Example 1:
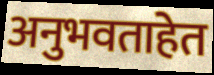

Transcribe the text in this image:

अनुभवताहेत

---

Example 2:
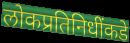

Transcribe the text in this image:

लोकप्रतिनिधींकडे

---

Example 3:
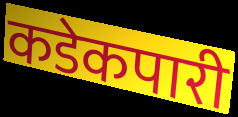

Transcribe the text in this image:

कडेकपारी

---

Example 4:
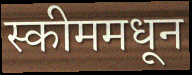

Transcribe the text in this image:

स्कीममधून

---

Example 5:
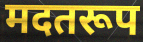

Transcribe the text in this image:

मदतरूप